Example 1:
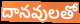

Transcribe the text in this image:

దానవులతో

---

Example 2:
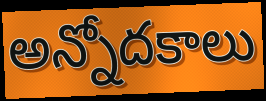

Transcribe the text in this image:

అన్నోదకాలు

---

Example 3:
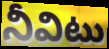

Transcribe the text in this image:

నీవిటు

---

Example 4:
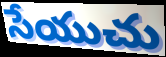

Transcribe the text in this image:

సేయుచు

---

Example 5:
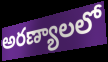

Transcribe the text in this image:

అరణ్యాలలో